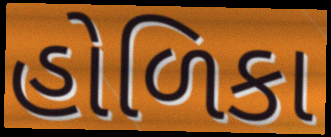
હોળિકા